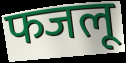
फजलू